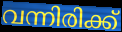
വന്നിരിക്ക്